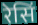
रेसिं